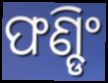
ଫଣ୍ଡିଂ